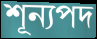
শূন্যপদ